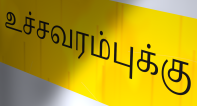
உச்சவரம்புக்கு